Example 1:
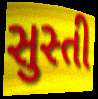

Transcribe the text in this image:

સુસ્તી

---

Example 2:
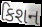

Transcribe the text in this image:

કિશન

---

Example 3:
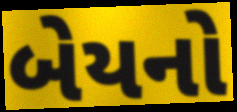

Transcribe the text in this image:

બેયનો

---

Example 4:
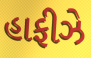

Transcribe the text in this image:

હાફીઝે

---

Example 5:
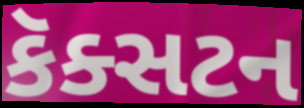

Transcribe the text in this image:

કૅક્સટન